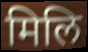
मिलि